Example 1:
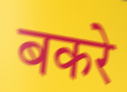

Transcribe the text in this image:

बकरे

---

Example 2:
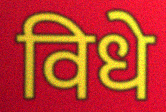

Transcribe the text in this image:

विधे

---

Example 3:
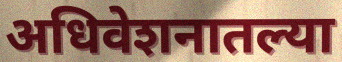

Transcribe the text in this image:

अधिवेशनातल्या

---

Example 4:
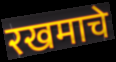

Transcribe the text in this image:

रखमाचे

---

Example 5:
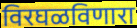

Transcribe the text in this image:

विरघळविणारा